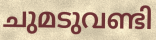
ചുമടുവണ്ടി